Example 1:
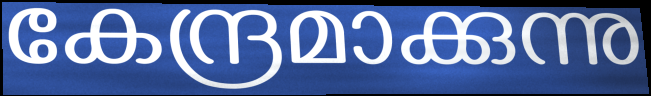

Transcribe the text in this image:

കേന്ദ്രമാക്കുന്നു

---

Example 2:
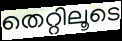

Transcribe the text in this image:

തെറ്റിലൂടെ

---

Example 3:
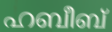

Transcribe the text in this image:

ഹബീബ്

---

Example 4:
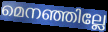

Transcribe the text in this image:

മെനഞ്ഞില്ലേ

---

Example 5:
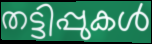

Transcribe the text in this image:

തട്ടിപ്പുകൾ